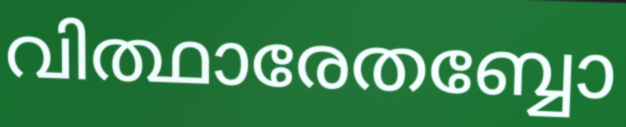
വിത്ഥാരേതബ്ബോ